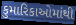
કુમારિકાઓમાંથી